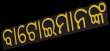
ବାଟୋଇମାନଙ୍କ